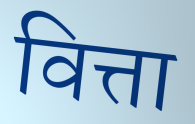
वित्ता